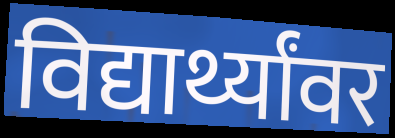
विद्यार्थ्यांवर